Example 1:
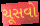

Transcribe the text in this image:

ચૂસવો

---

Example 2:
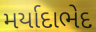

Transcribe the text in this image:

મર્યાદાભેદ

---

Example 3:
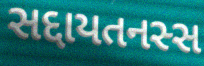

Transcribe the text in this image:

સદ્દાયતનસ્સ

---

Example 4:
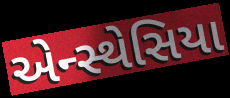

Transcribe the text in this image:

એન્સ્થેસિયા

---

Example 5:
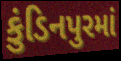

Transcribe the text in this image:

કુંડિનપુરમાં